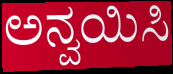
ಅನ್ವಯಿಸಿ